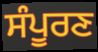
ਸੰਪੂਰਣ